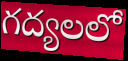
గద్యలలో